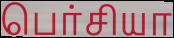
பெர்சியா